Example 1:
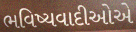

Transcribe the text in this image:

ભવિષ્યવાદીઓએ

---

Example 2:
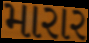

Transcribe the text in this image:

મારાર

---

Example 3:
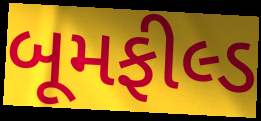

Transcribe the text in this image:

બૂમફીલ્ડ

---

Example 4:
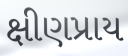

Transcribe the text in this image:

ક્ષીણપ્રાય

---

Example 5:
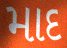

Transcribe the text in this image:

માદ